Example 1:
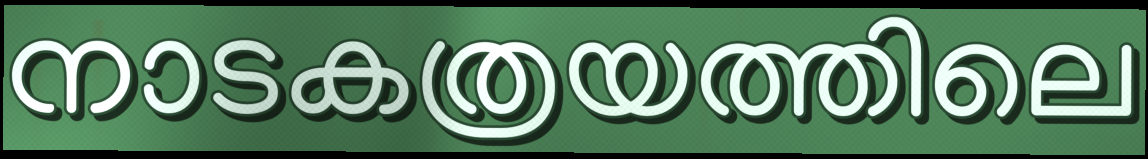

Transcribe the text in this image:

നാടകത്രയത്തിലെ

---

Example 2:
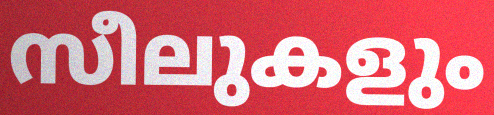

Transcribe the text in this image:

സീലുകളും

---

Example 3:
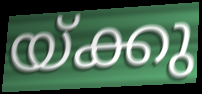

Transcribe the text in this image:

യ്ക്കു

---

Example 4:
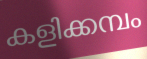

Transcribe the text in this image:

കളിക്കമ്പം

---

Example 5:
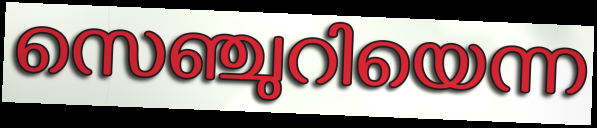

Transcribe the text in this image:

സെഞ്ചുറിയെന്ന